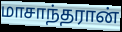
மாசாந்தரான்